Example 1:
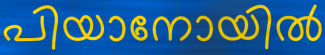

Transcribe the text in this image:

പിയാനോയിൽ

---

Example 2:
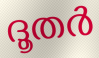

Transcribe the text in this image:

ദൂതർ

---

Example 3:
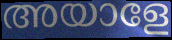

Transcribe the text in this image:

അയാളേ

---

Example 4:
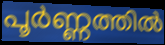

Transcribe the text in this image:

പൂർണ്ണത്തിൽ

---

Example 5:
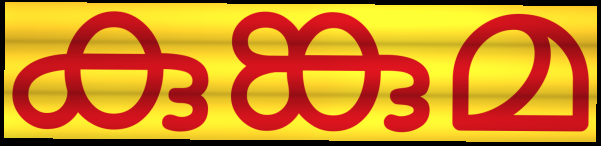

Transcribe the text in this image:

കുങ്കുമ